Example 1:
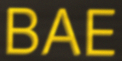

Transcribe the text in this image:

BAE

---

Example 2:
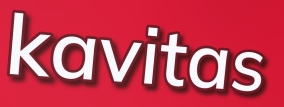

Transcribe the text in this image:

kavitas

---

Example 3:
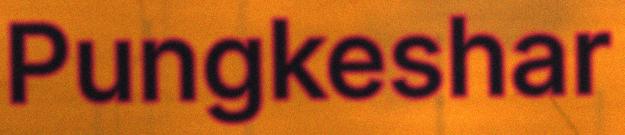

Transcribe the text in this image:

Pungkeshar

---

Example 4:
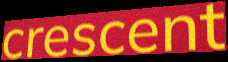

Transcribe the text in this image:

crescent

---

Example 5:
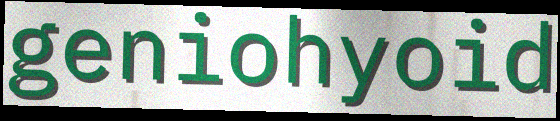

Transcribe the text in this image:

geniohyoid